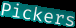
Pickers